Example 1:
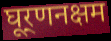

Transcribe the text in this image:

घूर्णनक्षम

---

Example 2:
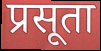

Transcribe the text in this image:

प्रसूता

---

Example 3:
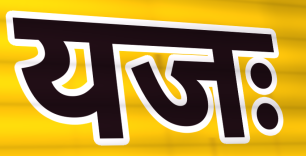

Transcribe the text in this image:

यजः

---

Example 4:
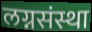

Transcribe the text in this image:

लग्नसंस्था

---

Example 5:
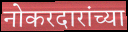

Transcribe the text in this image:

नोकरदारांच्या